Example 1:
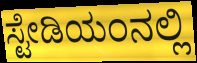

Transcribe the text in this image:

ಸ್ಟೇಡಿಯಂನಲ್ಲಿ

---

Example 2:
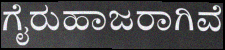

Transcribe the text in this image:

ಗೈರುಹಾಜರಾಗಿವೆ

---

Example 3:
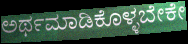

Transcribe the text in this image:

ಅರ್ಥಮಾಡಿಕೊಳ್ಳಬೇಕೇ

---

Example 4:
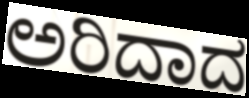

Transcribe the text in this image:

ಅರಿದಾದ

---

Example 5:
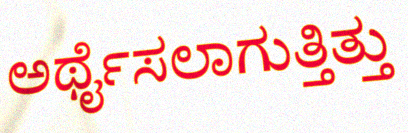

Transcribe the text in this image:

ಅರ್ಥೈಸಲಾಗುತ್ತಿತ್ತು